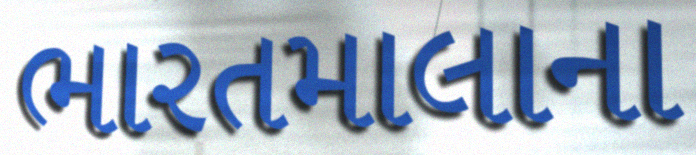
ભારતમાલાના